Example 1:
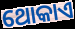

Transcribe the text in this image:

ଥୋକାଏ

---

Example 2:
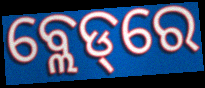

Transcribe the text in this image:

ବ୍ଲେଡ୍‌ରେ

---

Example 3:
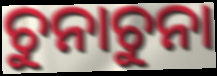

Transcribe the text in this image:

ଚୁନାଚୁନା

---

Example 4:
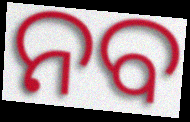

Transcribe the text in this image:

ନବ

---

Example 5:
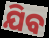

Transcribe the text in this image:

ଯିବ